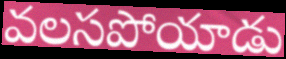
వలసపోయాడు